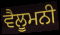
ਵੈਲੂਮਨੀ